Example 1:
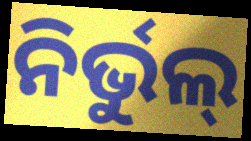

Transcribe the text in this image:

ନିର୍ଭୁଲ୍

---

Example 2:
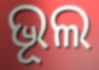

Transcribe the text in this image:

ଭୂଲ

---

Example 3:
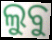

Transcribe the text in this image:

ଲୁବୁ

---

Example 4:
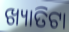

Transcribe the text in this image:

ଖ୍ୟାତିଟା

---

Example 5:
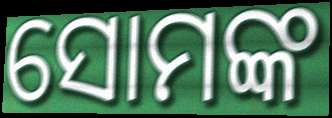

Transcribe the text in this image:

ସୋମଙ୍କ